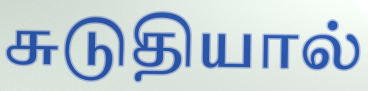
சுடுதியால்